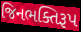
જિનભક્તિરૂપ